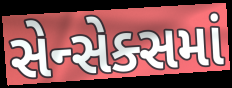
સેન્સેક્સમાં